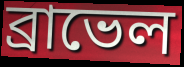
ব্রাভেল